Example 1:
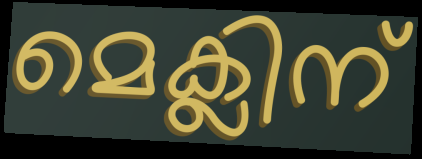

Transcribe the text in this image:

മെക്ലിന്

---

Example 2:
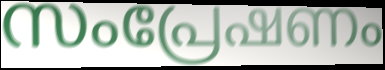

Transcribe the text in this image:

സംപ്രേഷണം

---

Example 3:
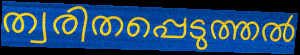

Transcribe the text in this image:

ത്വരിതപ്പെടുത്തൽ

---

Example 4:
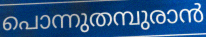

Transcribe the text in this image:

പൊന്നുതമ്പുരാൻ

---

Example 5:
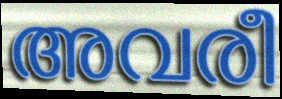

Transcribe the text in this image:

അവരീ